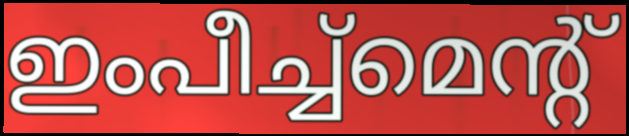
ഇംപീച്ച്മെന്റ്